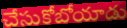
చేసుకోబోయాడు